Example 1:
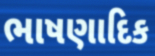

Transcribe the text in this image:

ભાષણાદિક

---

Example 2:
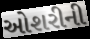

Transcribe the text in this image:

ઓશરીની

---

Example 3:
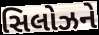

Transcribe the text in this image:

સિલોઝને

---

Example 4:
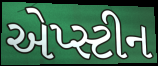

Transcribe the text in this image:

એપ્સ્ટીન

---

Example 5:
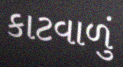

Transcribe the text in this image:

કાટવાળું